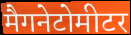
मैगनेटोमीटर